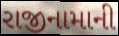
રાજીનામાની